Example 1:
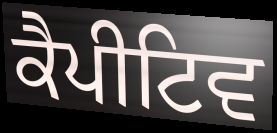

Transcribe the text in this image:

ਕੈਪੀਟਿਵ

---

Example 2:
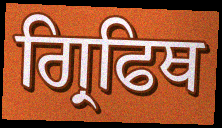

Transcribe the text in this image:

ਗ੍ਰਿਫਿਥ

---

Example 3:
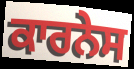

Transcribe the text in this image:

ਕਾਰਨੇਸ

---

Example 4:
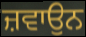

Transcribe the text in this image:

ਜ਼ਵਾਉਨ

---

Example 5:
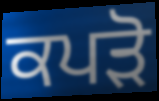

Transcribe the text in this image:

ਕਪੜੋ